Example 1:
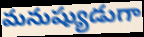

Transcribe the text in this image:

మనుష్యుడుగా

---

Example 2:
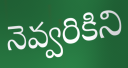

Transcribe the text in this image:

నెవ్వరికిని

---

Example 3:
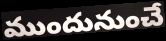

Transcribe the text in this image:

ముందునుంచే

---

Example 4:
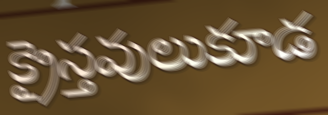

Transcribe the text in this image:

క్రైస్తవులుకూడ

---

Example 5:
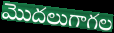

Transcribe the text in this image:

మొదలుగాగల